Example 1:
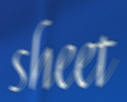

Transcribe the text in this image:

sheet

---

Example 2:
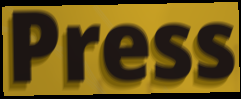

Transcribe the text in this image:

Press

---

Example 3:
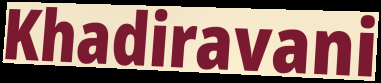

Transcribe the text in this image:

Khadiravani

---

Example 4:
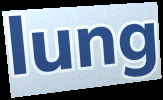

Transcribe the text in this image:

lung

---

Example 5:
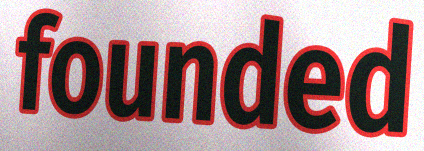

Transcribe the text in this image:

founded